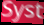
Syst